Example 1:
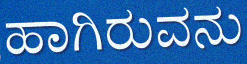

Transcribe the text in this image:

ಹಾಗಿರುವನು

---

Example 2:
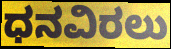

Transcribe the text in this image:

ಧನವಿರಲು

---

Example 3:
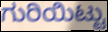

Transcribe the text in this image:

ಗುರಿಯಿಟ್ಟು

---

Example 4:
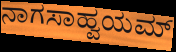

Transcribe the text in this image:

ನಾಗಸಾಹ್ವಯಮ್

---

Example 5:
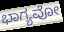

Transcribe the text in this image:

ಭಾಗ್ಯವೋ